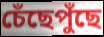
চেঁছেপুঁছে